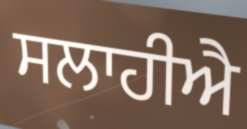
ਸਲਾਹੀਐ